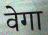
वेगा